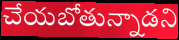
చేయబోతున్నాడని